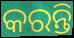
କରନ୍ତି